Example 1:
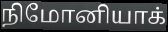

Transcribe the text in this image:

நிமோனியாக்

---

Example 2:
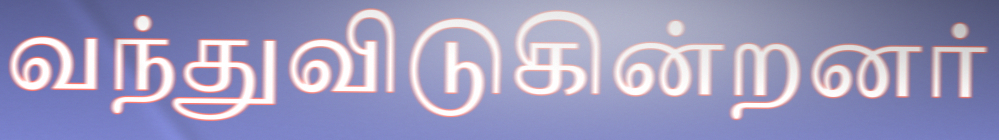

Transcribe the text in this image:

வந்துவிடுகின்றனர்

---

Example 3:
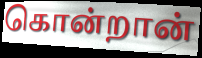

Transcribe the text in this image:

கொன்றான்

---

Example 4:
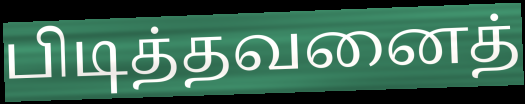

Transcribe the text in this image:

பிடித்தவனைத்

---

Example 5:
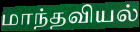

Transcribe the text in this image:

மாந்தவியல்